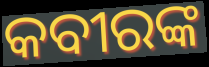
କବୀରଙ୍କ